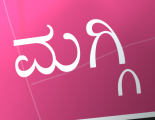
ಮಗ್ಗಿ